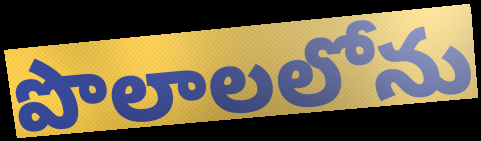
పొలాలలోను